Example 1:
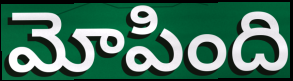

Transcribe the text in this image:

మోపింది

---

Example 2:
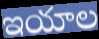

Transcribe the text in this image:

ఇయాల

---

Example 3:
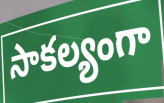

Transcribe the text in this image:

సాకల్యంగా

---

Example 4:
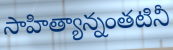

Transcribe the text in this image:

సాహిత్యాన్నంతటినీ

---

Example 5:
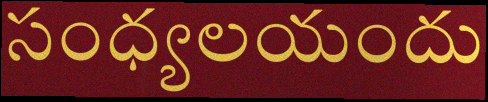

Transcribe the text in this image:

సంధ్యలయందు